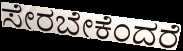
ಸೇರಬೇಕೆಂದರೆ